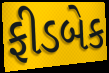
ફીડબેક